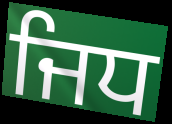
ਜਿਧ